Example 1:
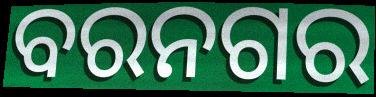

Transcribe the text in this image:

ବରନଗର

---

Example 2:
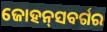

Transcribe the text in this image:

ଜୋହନ୍‌ସବର୍ଗର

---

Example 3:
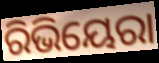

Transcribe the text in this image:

ରିଭିୟେରା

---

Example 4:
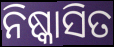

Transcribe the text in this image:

ନିଷ୍କାସିତ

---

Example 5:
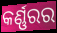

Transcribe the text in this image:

କର୍ଣ୍ଣରର